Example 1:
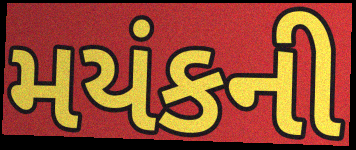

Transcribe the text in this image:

મયંકની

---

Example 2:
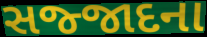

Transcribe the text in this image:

સજ્જાદના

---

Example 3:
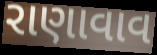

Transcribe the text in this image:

રાણાવાવ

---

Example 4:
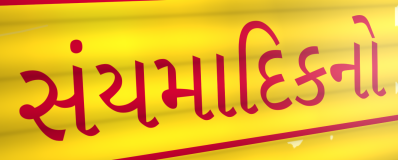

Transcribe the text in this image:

સંયમાદિકનો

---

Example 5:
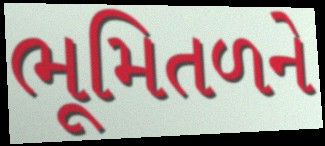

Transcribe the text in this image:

ભૂમિતળને